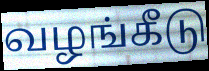
வழங்கீடு